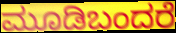
ಮೂಡಿಬಂದರೆ